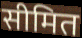
सीमित